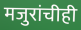
मजुरांचीही